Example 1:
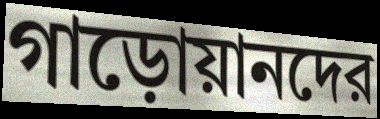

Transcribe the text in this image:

গাড়োয়ানদের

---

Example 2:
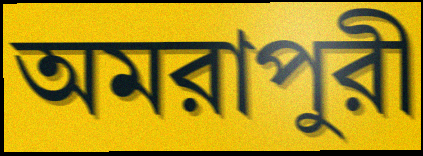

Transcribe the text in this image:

অমরাপুরী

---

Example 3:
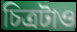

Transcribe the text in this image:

চিত্রটাও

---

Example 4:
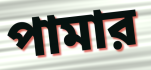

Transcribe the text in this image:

পামার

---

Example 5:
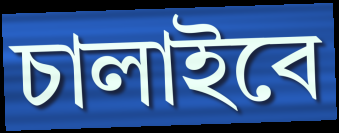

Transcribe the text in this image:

চালাইবে